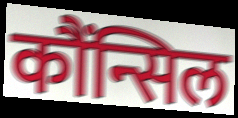
कौंन्सिल